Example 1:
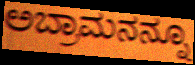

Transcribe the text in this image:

ಅಬ್ರಾಮನನ್ನೂ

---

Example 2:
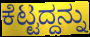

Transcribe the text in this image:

ಕೆಟ್ಟದ್ದನ್ನು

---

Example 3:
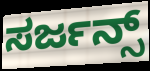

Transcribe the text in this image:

ಸರ್ಜನ್ಸ್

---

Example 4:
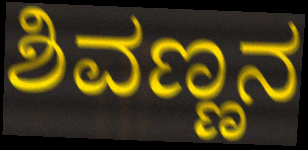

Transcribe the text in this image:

ಶಿವಣ್ಣನ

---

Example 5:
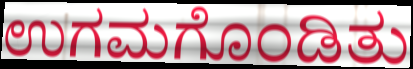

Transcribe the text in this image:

ಉಗಮಗೊಂಡಿತು